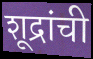
शूद्रांची